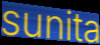
sunita